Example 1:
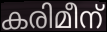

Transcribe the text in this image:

കരിമീന്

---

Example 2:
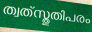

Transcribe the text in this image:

ത്വത്സ്തുതിപരം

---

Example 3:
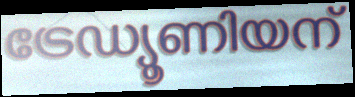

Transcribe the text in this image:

ട്രേഡ്യൂണിയന്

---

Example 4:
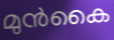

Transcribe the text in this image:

മുൻകൈ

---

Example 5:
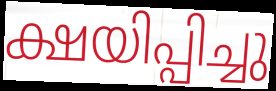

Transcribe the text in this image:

ക്ഷയിപ്പിച്ചു